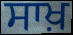
ਸਾਖ਼